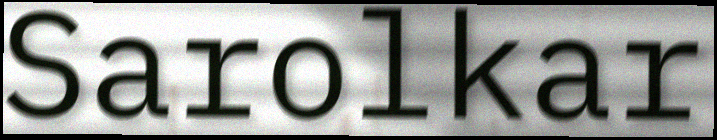
Sarolkar